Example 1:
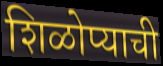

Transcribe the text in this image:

शिळोप्याची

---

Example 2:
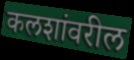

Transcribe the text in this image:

कलशांवरील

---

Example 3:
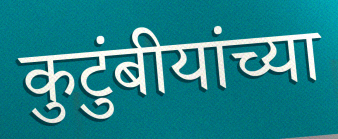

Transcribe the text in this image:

कुटुंबीयांच्या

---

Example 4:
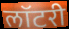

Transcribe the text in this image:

लॉटरी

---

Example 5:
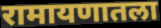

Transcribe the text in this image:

रामायणातला